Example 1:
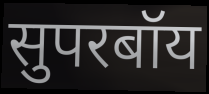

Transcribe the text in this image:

सुपरबॉय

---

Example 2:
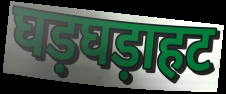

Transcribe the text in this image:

घड़घड़ाहट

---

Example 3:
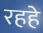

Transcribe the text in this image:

रहहे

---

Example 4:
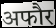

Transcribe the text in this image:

अफौर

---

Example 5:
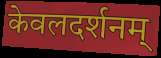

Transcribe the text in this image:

केवलदर्शनम्